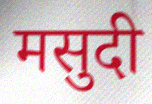
मसुदी